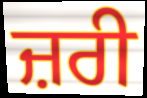
ਜ਼ਰੀ